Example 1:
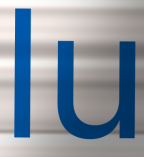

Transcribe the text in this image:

lu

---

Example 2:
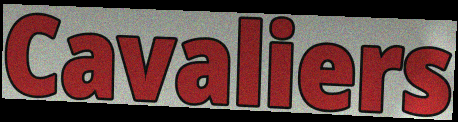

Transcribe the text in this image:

Cavaliers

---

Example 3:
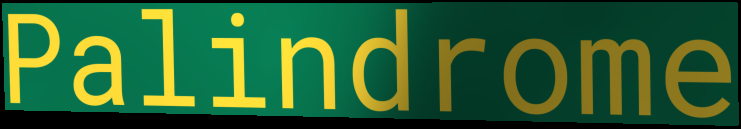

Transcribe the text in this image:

Palindrome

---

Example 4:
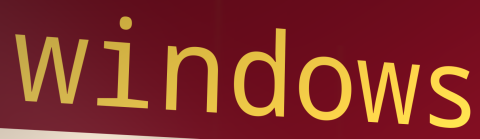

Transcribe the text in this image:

windows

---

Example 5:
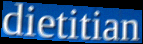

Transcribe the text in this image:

dietitian